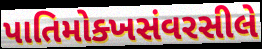
પાતિમોક્ખસંવરસીલે